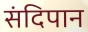
संदिपान